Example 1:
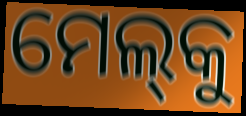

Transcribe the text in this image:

ମେଲ୍‌କୁ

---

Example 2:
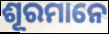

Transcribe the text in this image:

ଶୂରମାନେ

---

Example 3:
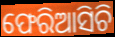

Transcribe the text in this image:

ଫେରିଆସିଚି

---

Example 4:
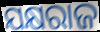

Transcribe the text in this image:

ଯକ୍ଷରାଜ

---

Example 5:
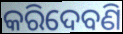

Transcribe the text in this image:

କରିଦେବଣି